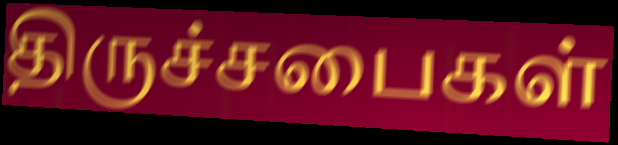
திருச்சபைகள்